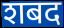
शबद